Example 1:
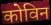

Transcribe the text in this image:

कोविन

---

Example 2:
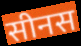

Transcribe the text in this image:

सीनस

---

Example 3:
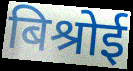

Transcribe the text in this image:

बिश्रोई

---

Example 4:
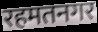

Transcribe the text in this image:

रहमतनगर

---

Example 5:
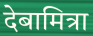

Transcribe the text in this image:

देबामित्रा